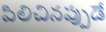
పిలిచినప్పుడే